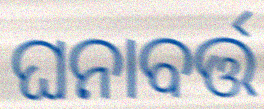
ଘନାବର୍ତ୍ତ